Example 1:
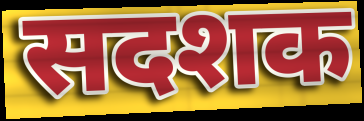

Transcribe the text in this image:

सदशक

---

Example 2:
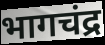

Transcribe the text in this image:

भागचंद्र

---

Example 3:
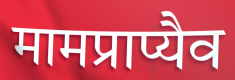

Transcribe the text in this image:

मामप्राप्यैव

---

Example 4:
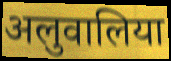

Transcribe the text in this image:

अलुवालिया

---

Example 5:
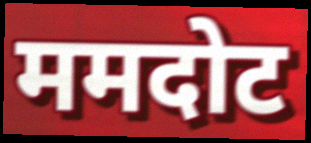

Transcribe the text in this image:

ममदोट